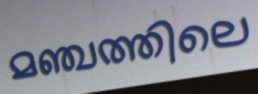
മഞ്ചത്തിലെ